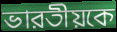
ভারতীয়কে